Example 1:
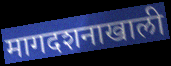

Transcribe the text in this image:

मागदशनाखाली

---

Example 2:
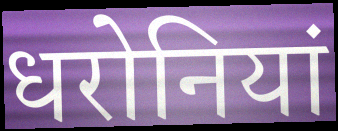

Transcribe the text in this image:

धरोनियां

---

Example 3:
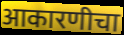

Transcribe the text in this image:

आकारणीचा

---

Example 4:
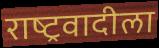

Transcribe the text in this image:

राष्ट्रवादीला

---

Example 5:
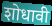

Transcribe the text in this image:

शोधावी